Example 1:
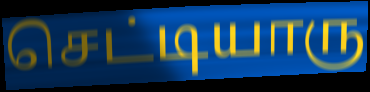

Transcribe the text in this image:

செட்டியாரு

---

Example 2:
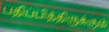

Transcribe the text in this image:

பதிப்பித்திருக்கும்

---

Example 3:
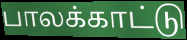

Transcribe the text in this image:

பாலக்காட்டு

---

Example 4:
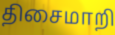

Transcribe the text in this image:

திசைமாறி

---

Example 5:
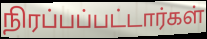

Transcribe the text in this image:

நிரப்பப்பட்டார்கள்